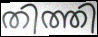
തിത്തി